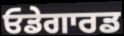
ਓਡੇਗਾਰਡ